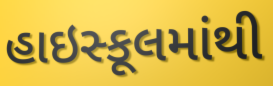
હાઇસ્કૂલમાંથી